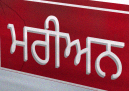
ਮਰੀਅਨ